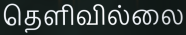
தெளிவில்லை